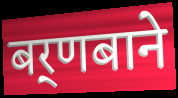
बर्णबाने